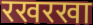
रखरखा